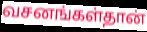
வசனங்கள்தான்